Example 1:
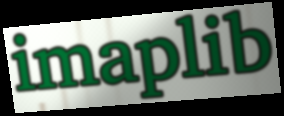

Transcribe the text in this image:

imaplib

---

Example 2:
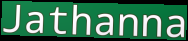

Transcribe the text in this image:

Jathanna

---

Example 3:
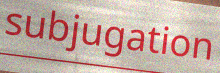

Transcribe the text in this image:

subjugation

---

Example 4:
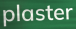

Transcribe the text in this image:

plaster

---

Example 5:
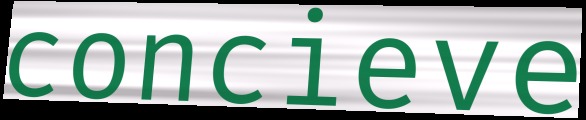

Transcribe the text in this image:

concieve